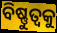
ବିଷ୍ଣୁତ୍ୱକୁ